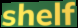
shelf